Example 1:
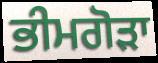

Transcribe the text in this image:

ਭੀਮਗੋੜਾ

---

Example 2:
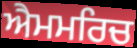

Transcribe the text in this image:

ਐਮਮਰਿਚ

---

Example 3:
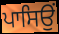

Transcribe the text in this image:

ਪਾਸਿਉਂ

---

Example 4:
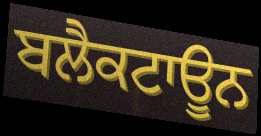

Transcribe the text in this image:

ਬਲੈਕਟਾਊਨ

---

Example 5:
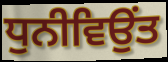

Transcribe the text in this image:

ਧੁਨੀਵਿਉਂਤ